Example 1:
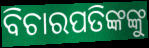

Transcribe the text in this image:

ବିଚାରପତିଙ୍କଙ୍କୁ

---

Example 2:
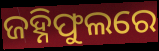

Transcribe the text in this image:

ଜହ୍ନିଫୁଲରେ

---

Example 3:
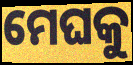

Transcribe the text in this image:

ମେଘକୁ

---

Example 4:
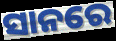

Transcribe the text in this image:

ସାନରେ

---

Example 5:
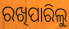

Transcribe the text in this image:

ରଖିପାରିଲୁ